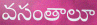
వసంతాలూ